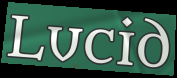
Lucid